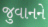
જુવાનને